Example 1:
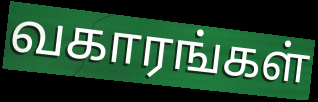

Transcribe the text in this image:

வகாரங்கள்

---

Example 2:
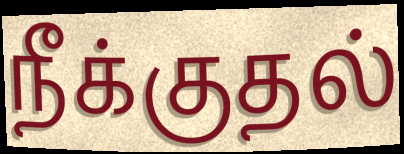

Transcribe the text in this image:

நீக்குதல்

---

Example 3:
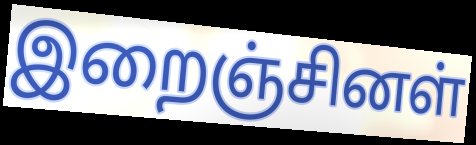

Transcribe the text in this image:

இறைஞ்சினள்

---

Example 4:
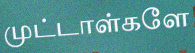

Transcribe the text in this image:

முட்டாள்களே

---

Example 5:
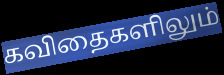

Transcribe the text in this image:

கவிதைகளிலும்